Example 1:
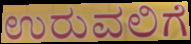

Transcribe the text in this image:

ಉರುವಲಿಗೆ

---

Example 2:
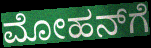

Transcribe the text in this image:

ಮೋಹನ್‌ಗೆ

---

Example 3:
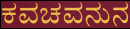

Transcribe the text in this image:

ಕವಚವನುನ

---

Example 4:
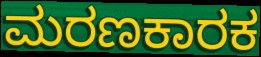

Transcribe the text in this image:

ಮರಣಕಾರಕ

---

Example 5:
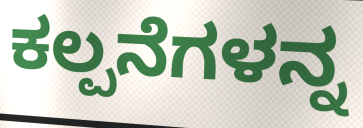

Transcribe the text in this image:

ಕಲ್ಪನೆಗಳನ್ನ